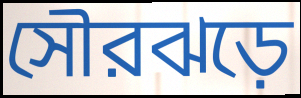
সৌরঝড়ে